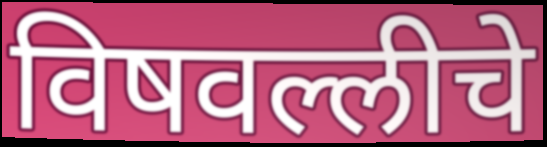
विषवल्लीचे